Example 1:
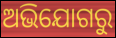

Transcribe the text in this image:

ଅଭିଯୋଗରୁ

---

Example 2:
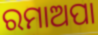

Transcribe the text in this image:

ରମାଅପା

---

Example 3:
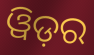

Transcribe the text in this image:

ୱିଡ଼ର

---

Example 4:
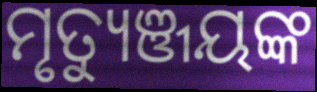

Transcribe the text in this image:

ମୃତ୍ୟୁଞ୍ଜୟଙ୍କ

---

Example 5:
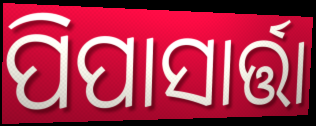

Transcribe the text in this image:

ପିପାସାର୍ତ୍ତା